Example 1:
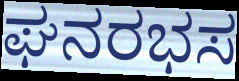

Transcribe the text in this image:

ಘನರಭಸ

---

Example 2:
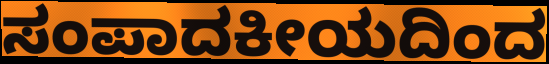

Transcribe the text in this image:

ಸಂಪಾದಕೀಯದಿಂದ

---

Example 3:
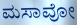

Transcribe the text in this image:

ಮಸಾವೋ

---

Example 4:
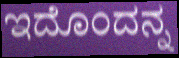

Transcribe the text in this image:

ಇದೊಂದನ್ನ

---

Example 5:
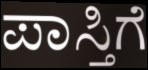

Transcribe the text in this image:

ಪಾಸ್ತಿಗೆ